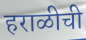
हराळीची